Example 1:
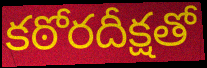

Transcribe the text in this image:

కఠోరదీక్షతో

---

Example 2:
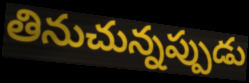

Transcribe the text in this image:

తినుచున్నప్పుడు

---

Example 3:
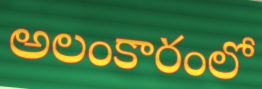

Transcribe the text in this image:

అలంకారంలో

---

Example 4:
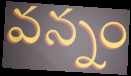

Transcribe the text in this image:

వన్నం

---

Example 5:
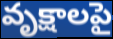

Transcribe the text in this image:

వృక్షాలపై